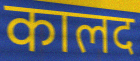
कालद